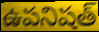
ఉపనిషత్